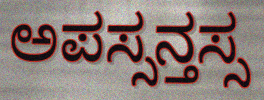
ಅಪಸ್ಸನ್ತಸ್ಸ